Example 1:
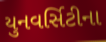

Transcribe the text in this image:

યુનવર્સિટીના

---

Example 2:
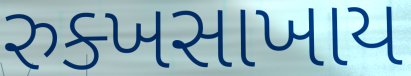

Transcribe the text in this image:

રુક્ખસાખાય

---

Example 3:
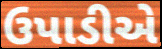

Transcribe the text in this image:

ઉપાડીએ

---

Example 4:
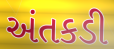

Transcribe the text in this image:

અંતકડી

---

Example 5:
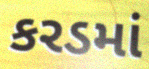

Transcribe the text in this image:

કરડમાં